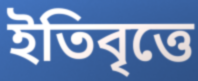
ইতিবৃত্তে